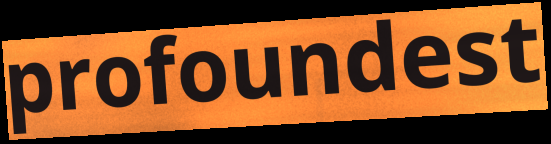
profoundest